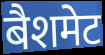
बैशमेट